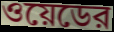
ওয়েডের